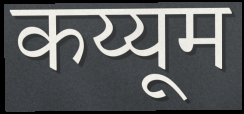
कय्यूम